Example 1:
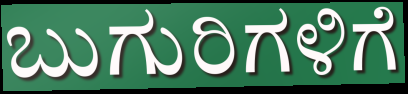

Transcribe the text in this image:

ಬುಗುರಿಗಳಿಗೆ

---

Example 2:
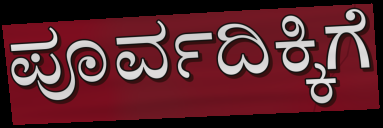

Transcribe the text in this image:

ಪೂರ್ವದಿಕ್ಕಿಗೆ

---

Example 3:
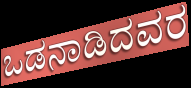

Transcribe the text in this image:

ಒಡನಾಡಿದವರ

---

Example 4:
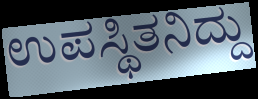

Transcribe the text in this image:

ಉಪಸ್ಥಿತನಿದ್ದು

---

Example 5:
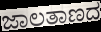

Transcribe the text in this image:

ಜಾಲತಾಣದ